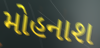
મોહનાશ